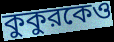
কুকুরকেও